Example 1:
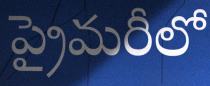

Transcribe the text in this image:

ప్రైమరీలో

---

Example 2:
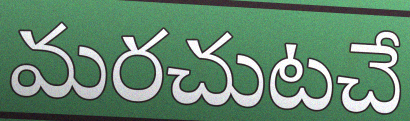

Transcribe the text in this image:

మరచుటచే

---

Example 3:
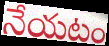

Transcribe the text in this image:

నేయటం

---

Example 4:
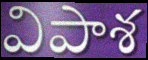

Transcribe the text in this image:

విపాశ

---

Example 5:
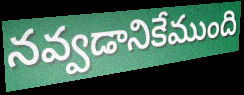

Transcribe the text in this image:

నవ్వడానికేముంది